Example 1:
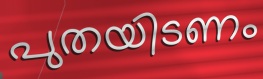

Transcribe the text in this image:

പുതയിടണം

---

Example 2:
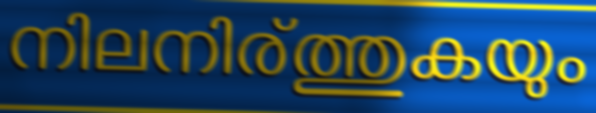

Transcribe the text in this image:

നിലനിര്ത്തുകയും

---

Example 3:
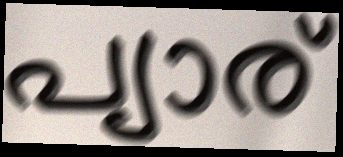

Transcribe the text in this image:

പ്യാര്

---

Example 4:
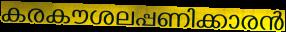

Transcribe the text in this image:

കരകൗശലപ്പണിക്കാരൻ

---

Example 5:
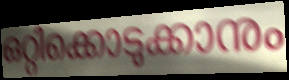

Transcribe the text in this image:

ഒറ്റിക്കൊടുക്കാനും